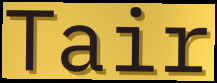
Tair